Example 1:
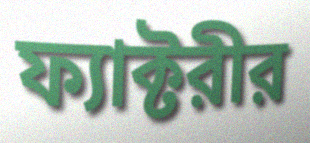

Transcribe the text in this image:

ফ্যাক্টরীর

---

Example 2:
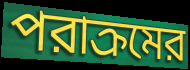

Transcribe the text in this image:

পরাক্রমের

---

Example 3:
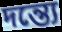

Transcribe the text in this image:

দন্ত্যে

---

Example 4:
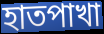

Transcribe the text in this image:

হাতপাখা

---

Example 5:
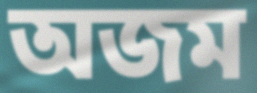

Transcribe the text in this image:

অজম